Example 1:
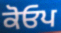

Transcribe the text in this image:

ਕੋਓਪ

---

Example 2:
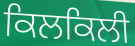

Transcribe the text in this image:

ਕਿਲਕਿਲੀ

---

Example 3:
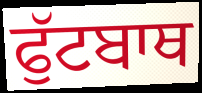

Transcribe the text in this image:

ਫੁੱਟਬਾਥ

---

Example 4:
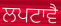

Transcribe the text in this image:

ਲਪਟਾਵੈ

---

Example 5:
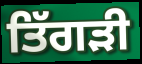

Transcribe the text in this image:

ਤਿੱਗੜੀ